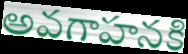
అవగాహనకి